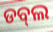
ଡବ୍‌ଲ